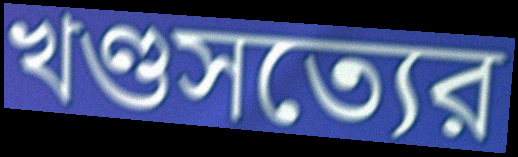
খণ্ডসত্যের